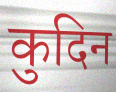
कुदिन